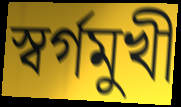
স্বর্গমুখী